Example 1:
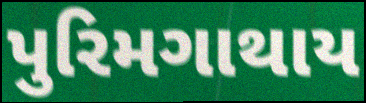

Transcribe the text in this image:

પુરિમગાથાય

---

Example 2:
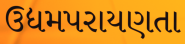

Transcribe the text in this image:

ઉદ્યમપરાયણતા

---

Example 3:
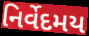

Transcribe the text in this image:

નિર્વેદમય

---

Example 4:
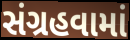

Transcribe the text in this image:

સંગ્રહવામાં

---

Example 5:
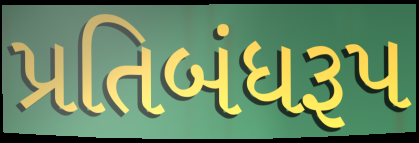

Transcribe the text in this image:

પ્રતિબંધરૂપ